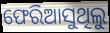
ଫେରିଆସୁଥିଲୁ